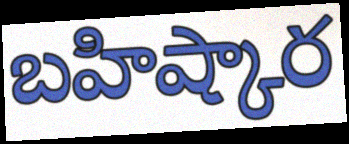
బహిష్కార